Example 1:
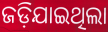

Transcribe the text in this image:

ଜଡ଼ିଯାଇଥିଲା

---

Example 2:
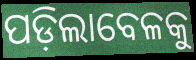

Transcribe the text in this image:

ପଡ଼ିଲାବେଳକୁ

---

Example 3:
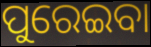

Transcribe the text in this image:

ପୁରେଇବା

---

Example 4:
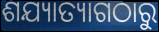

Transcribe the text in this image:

ଶଯ୍ୟାତ୍ୟାଗଠାରୁ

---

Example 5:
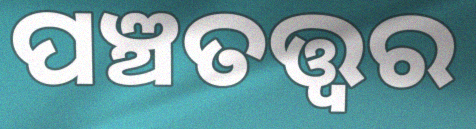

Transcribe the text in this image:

ପଞ୍ଚତତ୍ତ୍ୱର